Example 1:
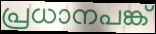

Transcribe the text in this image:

പ്രധാനപങ്ക്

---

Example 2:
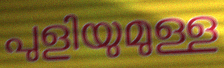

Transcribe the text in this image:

പുളിയുമുള്ള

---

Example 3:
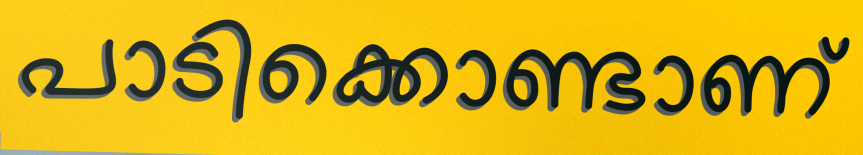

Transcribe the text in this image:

പാടിക്കൊണ്ടാണ്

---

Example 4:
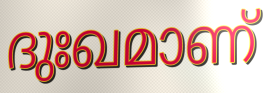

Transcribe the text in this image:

ദുഃഖമാണ്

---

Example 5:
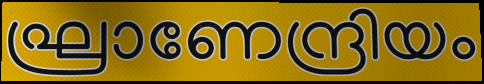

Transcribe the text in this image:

ഘ്രാണേന്ദ്രിയം